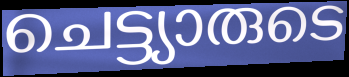
ചെട്ട്യാരുടെ